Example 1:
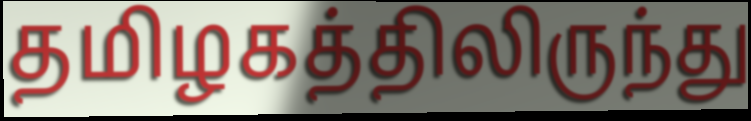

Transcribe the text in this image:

தமிழகத்திலிருந்து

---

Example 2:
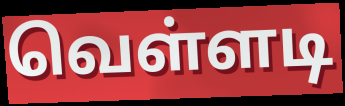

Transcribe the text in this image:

வெள்ளடி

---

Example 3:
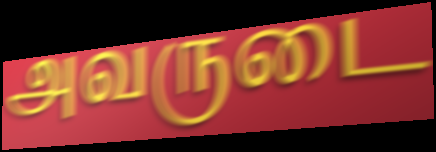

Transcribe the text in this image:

அவருடை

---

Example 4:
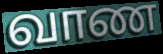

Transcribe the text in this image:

வாண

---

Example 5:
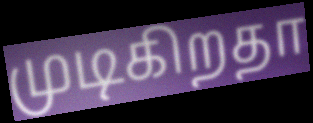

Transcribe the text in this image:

முடிகிறதா